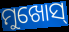
ମୁଖୋସ୍